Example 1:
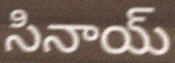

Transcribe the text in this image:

సినాయ్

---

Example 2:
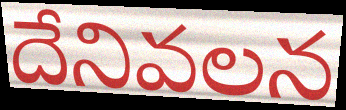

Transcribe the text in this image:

దేనివలన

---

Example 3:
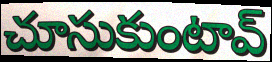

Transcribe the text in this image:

చూసుకుంటావ్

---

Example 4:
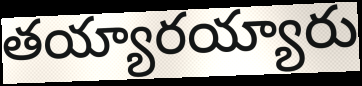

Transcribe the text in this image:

తయ్యారయ్యారు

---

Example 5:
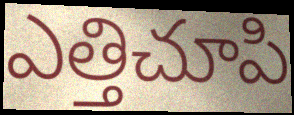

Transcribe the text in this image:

ఎత్తిచూపి